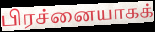
பிரச்னையாகக்